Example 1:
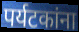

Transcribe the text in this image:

पर्यटकांना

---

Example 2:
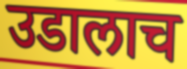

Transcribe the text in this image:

उडालाच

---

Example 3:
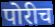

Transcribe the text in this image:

पोरीच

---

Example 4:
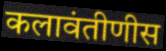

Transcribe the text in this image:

कलावंतीणीस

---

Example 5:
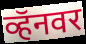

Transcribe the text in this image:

व्हॅनवर